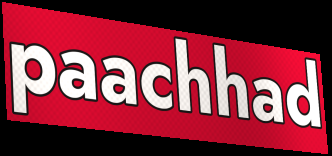
paachhad